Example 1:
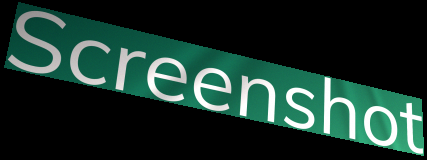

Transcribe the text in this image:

Screenshot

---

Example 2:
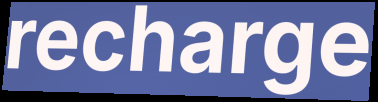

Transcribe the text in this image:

recharge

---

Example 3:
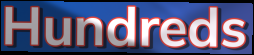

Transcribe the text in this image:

Hundreds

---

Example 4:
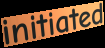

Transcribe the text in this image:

initiated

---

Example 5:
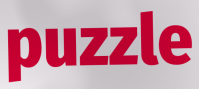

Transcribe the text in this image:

puzzle